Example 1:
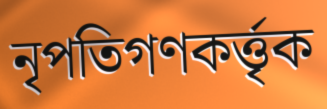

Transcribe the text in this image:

নৃপতিগণকর্ত্তৃক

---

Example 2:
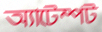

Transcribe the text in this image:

অ্যাটেম্পট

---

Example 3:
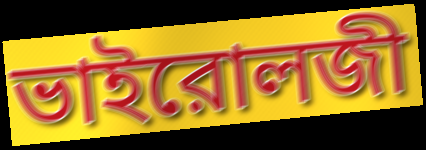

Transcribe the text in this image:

ভাইরোলজী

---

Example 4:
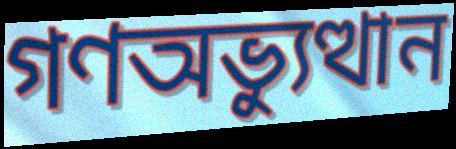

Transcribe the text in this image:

গণঅভ্যুত্থান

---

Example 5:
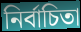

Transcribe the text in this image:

নির্বাচিতা